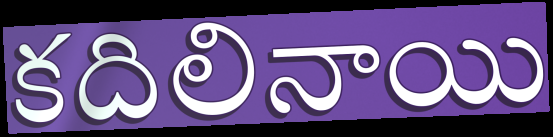
కదిలినాయి